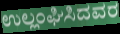
ಉಲ್ಲಂಘಿಸಿದವರ